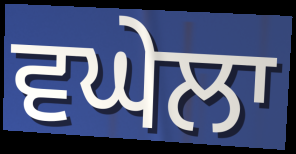
ਵਘੇਲਾ